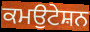
ਕਮਉਟੇਸ਼ਨ